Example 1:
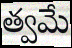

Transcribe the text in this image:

త్వమే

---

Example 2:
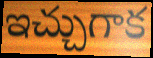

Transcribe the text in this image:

ఇచ్చుగాక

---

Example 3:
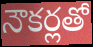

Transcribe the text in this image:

నౌకర్లతో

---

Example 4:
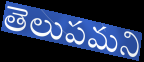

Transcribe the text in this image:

తెలుపమని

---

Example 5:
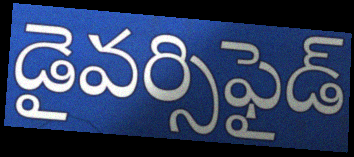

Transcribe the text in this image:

డైవర్సిఫైడ్